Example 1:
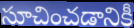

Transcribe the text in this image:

సూచించడానికీ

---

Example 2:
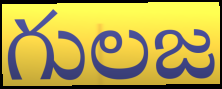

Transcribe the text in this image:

గులజ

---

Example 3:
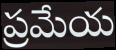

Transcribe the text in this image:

ప్రమేయ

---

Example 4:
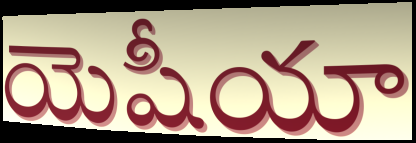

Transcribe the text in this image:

యెషీయా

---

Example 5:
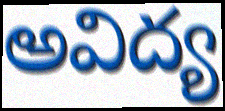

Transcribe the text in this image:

అవిద్య